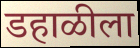
डहाळीला